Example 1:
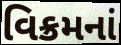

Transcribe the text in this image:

વિક્રમનાં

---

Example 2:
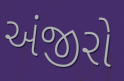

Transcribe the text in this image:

અંજીરો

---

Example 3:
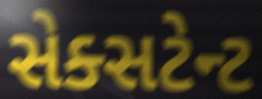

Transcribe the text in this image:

સેક્સટેન્ટ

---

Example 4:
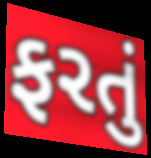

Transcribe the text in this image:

ફરતું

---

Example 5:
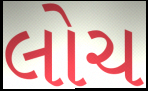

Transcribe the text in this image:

લોચ